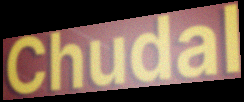
Chudal